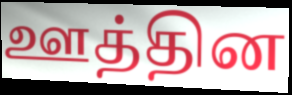
ஊத்தின